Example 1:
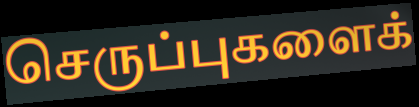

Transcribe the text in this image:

செருப்புகளைக்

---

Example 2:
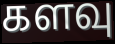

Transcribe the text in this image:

களவு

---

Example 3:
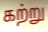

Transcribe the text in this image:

கற்று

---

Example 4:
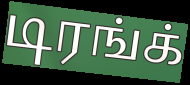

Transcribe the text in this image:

டிரங்க்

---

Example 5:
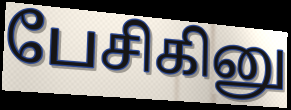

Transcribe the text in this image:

பேசிகினு